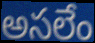
అసలేం